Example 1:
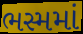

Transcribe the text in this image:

ભસ્મમાં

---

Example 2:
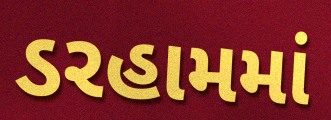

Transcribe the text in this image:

ડરહામમાં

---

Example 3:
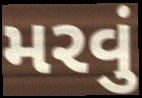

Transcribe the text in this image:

મરવું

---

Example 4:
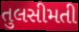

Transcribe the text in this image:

તુલસીમતી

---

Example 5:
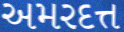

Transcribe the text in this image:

અમરદત્ત